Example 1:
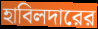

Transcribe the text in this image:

হাবিলদারের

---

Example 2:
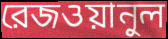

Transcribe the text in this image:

রেজওয়ানুল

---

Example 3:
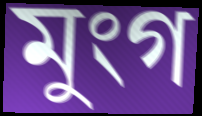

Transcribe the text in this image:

মুংগ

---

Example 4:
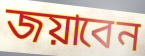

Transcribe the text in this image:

জয়াবেন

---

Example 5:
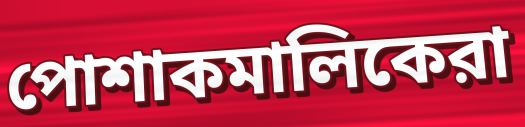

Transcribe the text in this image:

পোশাকমালিকেরা